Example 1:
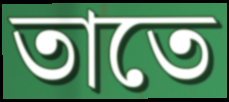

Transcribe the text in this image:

তাতে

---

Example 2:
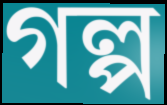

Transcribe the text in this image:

গল্প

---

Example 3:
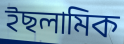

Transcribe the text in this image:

ইছলামিক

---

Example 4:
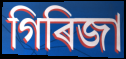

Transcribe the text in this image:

গিৰিজা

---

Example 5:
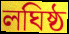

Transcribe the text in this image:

লঘিষ্ঠ